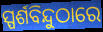
ସ୍ପର୍ଶବିନ୍ଦୁଠାରେ